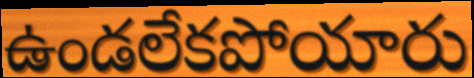
ఉండలేకపోయారు